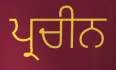
ਪ੍ਰਚੀਨ